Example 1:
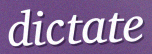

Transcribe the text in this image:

dictate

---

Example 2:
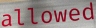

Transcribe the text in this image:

allowed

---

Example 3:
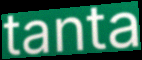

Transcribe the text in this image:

tanta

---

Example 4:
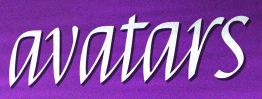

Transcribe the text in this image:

avatars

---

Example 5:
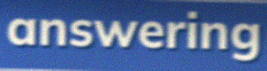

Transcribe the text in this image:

answering